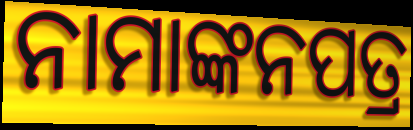
ନାମାଙ୍କନପତ୍ର